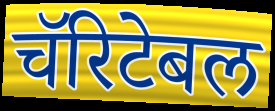
चॅरिटेबल